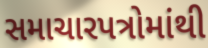
સમાચારપત્રોમાંથી